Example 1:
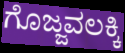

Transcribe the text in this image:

ಗೊಜ್ಜವಲಕ್ಕಿ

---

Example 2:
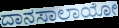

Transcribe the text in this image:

ದಾನಸಾಲಾಯೋ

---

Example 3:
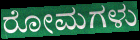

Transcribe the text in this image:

ರೋಮಗಳು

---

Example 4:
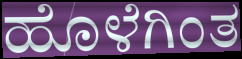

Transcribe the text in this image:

ಹೊಳೆಗಿಂತ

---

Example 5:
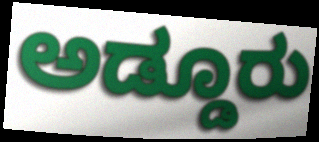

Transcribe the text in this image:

ಅಡ್ಡೂರು